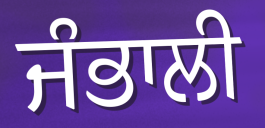
ਜੰਭਾਲੀ